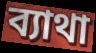
ব্যাথা